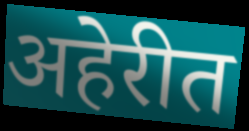
अहेरीत